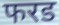
फरड